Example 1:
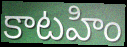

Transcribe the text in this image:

కాటహిం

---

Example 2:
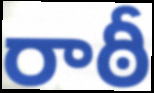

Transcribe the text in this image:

రాఠీ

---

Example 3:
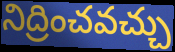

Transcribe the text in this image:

నిద్రించవచ్చు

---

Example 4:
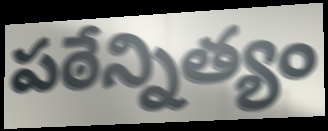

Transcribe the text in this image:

పఠేన్నిత్యం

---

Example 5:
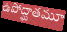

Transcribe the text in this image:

ఉపోద్ఘాతమూ